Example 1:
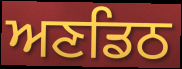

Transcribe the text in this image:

ਅਣਡਿਠ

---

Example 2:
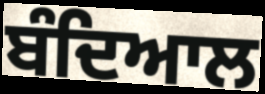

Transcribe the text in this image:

ਬੰਦਿਆਲ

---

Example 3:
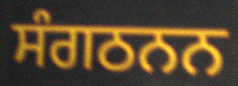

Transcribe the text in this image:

ਸੰਗਠਨਨ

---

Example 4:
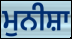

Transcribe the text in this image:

ਮੁਨੀਸ਼ਾ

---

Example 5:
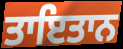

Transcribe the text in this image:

ਤਾਇਤਾਨ